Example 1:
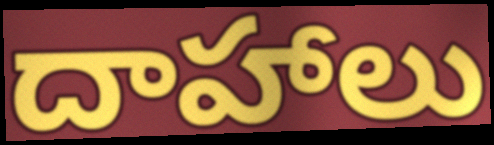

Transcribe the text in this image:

దాహాలు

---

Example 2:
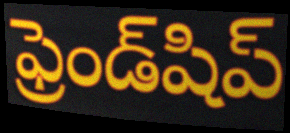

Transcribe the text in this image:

ఫ్రెండ్‌షిప్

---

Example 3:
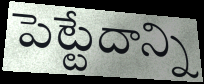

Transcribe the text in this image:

పెట్టేదాన్ని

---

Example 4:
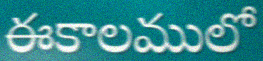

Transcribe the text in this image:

ఈకాలములో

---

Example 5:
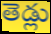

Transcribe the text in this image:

తెడ్లు